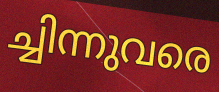
ച്ചിന്നുവരെ